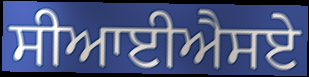
ਸੀਆਈਐਸਏ